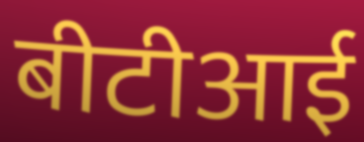
बीटीआई